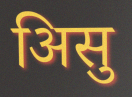
अिसु